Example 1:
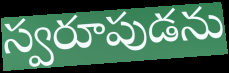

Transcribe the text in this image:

స్వరూపుడను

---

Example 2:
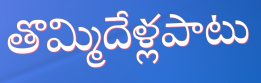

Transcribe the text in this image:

తొమ్మిదేళ్లపాటు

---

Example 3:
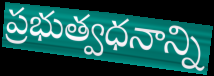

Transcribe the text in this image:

ప్రభుత్వధనాన్ని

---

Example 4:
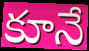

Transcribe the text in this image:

కూనే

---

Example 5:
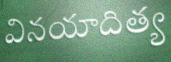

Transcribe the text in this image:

వినయాదిత్య